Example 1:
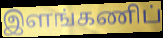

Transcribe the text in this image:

இளங்கணிப்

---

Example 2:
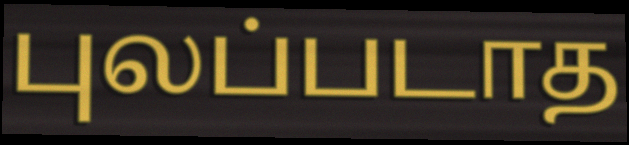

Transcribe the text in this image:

புலப்படாத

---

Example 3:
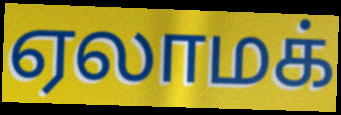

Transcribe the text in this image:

ஏலாமக்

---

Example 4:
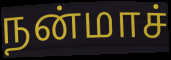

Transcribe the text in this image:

நன்மாச்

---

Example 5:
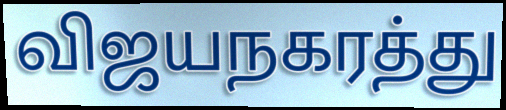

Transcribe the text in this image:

விஜயநகரத்து